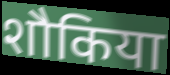
शौकिया